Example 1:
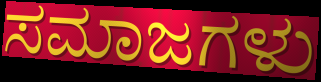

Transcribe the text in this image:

ಸಮಾಜಗಳು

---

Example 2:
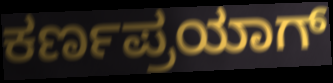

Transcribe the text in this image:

ಕರ್ಣಪ್ರಯಾಗ್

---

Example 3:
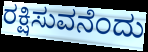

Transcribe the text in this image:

ರಕ್ಷಿಸುವನೆಂದು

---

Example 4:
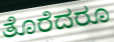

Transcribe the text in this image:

ತೊರೆದರೂ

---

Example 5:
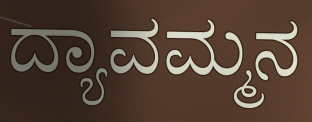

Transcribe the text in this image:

ದ್ಯಾವಮ್ಮನ